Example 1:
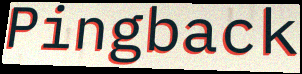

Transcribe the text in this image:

Pingback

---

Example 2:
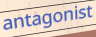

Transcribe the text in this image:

antagonist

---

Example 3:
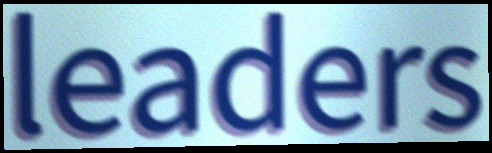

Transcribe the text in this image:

leaders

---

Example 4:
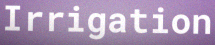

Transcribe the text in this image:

Irrigation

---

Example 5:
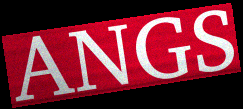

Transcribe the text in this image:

ANGS